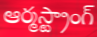
ఆర్మస్ట్రాంగ్